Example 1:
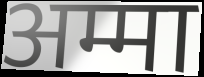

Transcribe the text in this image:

अम्मा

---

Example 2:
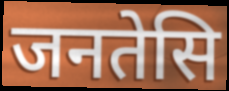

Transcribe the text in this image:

जनतेसि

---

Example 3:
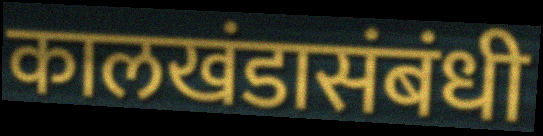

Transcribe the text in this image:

कालखंडासंबंधी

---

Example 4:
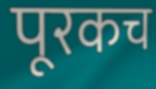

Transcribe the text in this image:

पूरकच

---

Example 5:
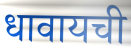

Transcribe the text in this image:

धावायची